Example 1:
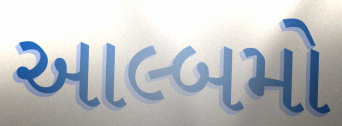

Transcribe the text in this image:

આલ્બમો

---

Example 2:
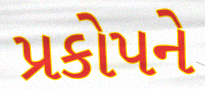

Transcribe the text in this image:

પ્રકોપને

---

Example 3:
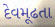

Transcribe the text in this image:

દેવમૂઢતા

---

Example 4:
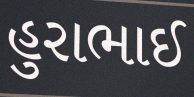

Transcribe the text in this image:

હુરાભાઈ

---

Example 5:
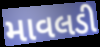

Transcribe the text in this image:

માવલડી